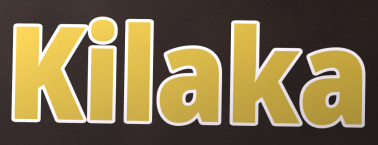
Kilaka